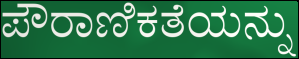
ಪೌರಾಣಿಕತೆಯನ್ನು